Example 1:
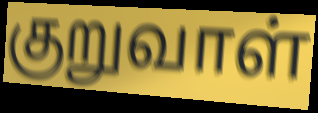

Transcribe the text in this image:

குறுவாள்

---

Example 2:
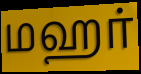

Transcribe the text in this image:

மஹர்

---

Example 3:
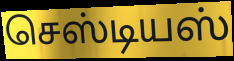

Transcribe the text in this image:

செஸ்டியஸ்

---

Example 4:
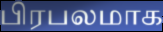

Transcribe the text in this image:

பிரபலமாக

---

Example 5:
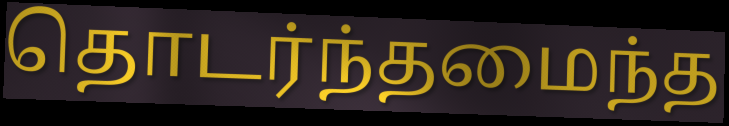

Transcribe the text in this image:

தொடர்ந்தமைந்த